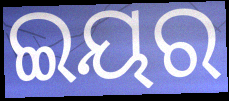
ଇୟର